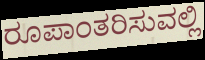
ರೂಪಾಂತರಿಸುವಲ್ಲಿ